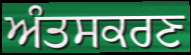
ਅੰਤਸਕਰਣ